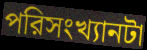
পরিসংখ্যানটা